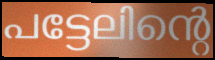
പട്ടേലിന്റെ